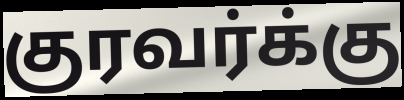
குரவர்க்கு